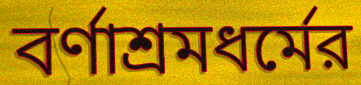
বর্ণাশ্রমধর্মের